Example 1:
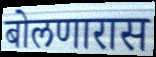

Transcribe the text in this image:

बोलणारास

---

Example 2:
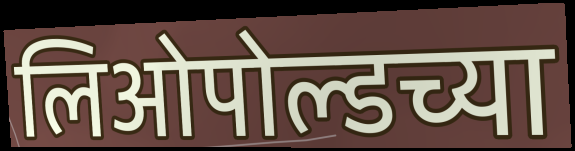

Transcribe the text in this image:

लिओपोल्डच्या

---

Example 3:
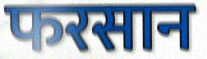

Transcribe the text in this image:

फरसान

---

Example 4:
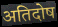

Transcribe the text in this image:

अतिदोष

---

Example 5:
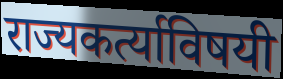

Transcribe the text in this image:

राज्यकर्त्याविषयी